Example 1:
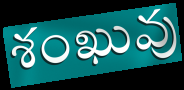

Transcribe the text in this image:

శంఖువు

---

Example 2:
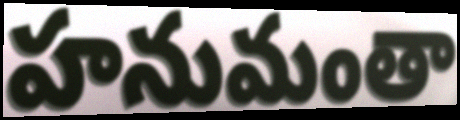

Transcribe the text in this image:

హనుమంతా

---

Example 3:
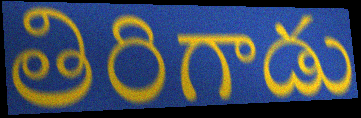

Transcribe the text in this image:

తిరిగాడు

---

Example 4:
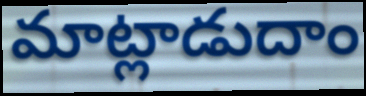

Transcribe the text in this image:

మాట్లాడుదాం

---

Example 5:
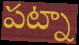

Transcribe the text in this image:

పట్నా